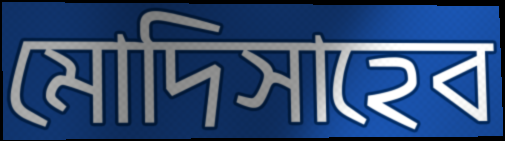
মোদিসাহেব